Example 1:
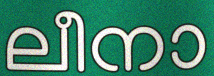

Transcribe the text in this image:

ലീനാ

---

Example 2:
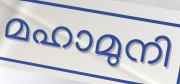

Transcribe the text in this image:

മഹാമുനി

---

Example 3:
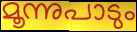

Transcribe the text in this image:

മൂന്നുപാടും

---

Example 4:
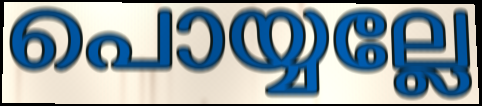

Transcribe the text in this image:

പൊയ്യല്ലേ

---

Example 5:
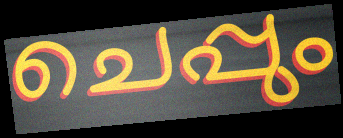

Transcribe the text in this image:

ചെപ്പും